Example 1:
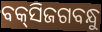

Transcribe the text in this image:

ବକ୍‌ସିଜଗବନ୍ଧୁ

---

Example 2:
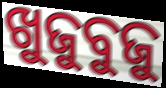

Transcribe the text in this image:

ଖୁଜୁବୁଜୁ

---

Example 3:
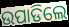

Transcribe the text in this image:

ଉପାଡିଲେ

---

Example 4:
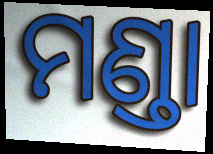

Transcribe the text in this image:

ମଣ୍ଡା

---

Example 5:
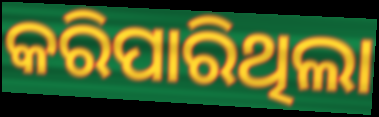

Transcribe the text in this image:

କରିପାରିଥିଲା